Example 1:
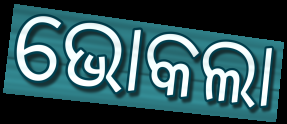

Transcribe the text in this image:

ଭୋକଲା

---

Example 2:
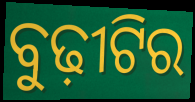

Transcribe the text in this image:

ବୁଢ଼ୀଟିର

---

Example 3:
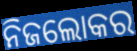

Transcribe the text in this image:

ନିଜଲୋକର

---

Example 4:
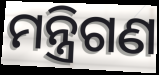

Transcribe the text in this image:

ମନ୍ତ୍ରିଗଣ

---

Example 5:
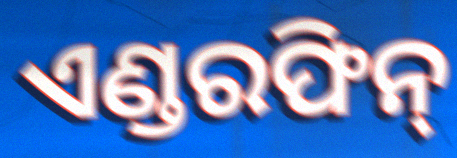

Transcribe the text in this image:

ଏଣ୍ଡରଫିନ୍